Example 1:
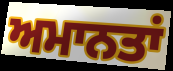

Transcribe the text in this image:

ਅਮਾਨਤਾਂ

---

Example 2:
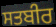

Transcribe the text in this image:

ਸਤਬੀਰ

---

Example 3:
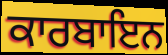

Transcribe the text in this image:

ਕਾਰਬਾਇਨ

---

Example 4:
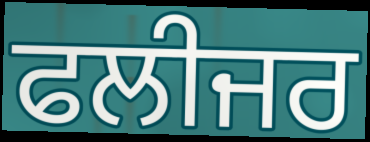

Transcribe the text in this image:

ਫਲੀਜਰ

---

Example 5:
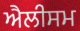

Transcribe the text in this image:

ਐਲੀਸਮ